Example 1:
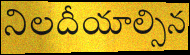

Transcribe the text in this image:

నిలదీయాల్సిన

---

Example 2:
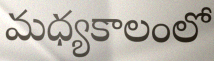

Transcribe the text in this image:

మధ్యకాలంలో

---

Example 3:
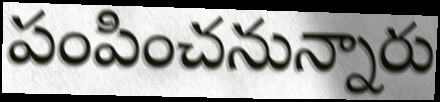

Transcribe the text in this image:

పంపించనున్నారు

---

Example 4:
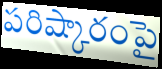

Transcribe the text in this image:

పరిష్కారంపై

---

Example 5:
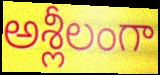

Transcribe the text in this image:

అశ్లీలంగా